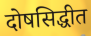
दोषसिद्धीत